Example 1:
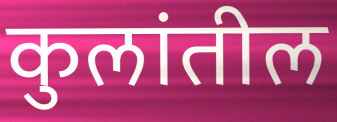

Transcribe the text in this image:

कुलांतील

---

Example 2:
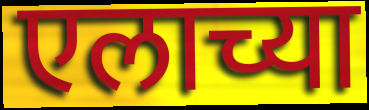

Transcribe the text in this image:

एलाच्या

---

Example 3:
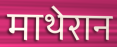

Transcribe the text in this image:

माथेरान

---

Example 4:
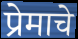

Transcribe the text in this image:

प्रेमाचे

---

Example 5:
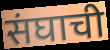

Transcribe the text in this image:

संघाची